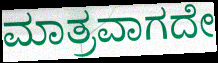
ಮಾತ್ರವಾಗದೇ